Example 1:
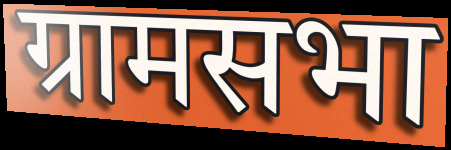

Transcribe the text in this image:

ग्रामसभा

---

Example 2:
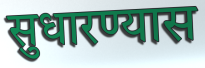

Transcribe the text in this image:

सुधारण्यास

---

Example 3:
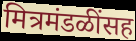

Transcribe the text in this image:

मित्रमंडळींसह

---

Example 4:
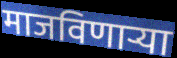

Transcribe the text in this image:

माजविणाऱ्या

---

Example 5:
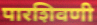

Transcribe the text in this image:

पारशिवणी